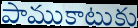
పాముకాటుకు